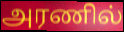
அரணில்